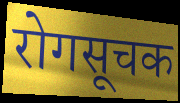
रोगसूचक